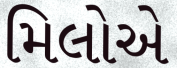
મિલોએ